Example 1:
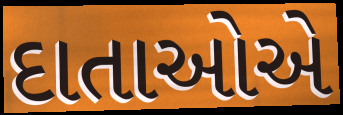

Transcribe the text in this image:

દાતાઓએ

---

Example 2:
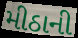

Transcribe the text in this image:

મીઠાની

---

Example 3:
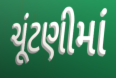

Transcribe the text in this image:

ચૂંટણીમાં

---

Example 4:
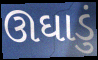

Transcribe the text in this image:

ઊઘાડું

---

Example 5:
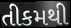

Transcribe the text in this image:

તીકમથી